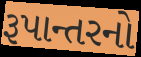
રૂપાન્તરનો